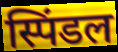
स्पिंडल